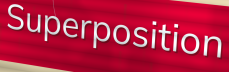
Superposition